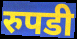
रुपडी